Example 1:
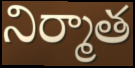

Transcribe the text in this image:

నిర్మాత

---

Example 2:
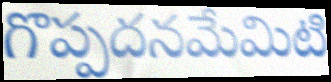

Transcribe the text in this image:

గొప్పదనమేమిటి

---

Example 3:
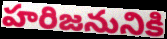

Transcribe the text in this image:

హరిజనునికి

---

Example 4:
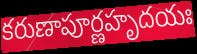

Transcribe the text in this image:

కరుణాపూర్ణహృదయః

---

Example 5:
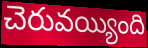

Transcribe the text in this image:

చెరువయ్యింది